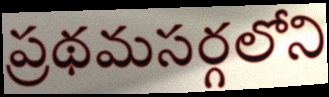
ప్రథమసర్గలోని